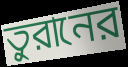
তুরানের